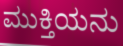
ಮುಕ್ತಿಯನು